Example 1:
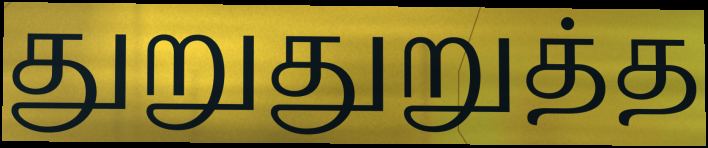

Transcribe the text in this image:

துறுதுறுத்த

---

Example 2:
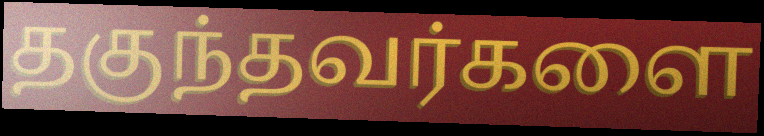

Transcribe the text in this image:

தகுந்தவர்களை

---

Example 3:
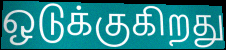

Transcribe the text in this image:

ஒடுக்குகிறது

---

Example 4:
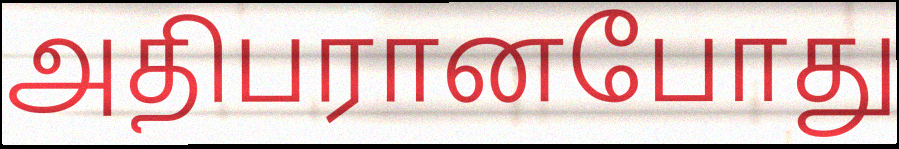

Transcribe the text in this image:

அதிபரானபோது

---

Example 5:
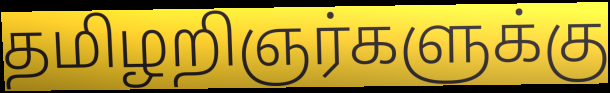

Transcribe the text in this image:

தமிழறிஞர்களுக்கு